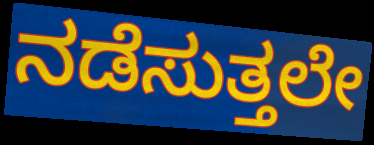
ನಡೆಸುತ್ತಲೇ